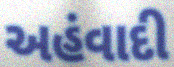
અહંવાદી